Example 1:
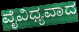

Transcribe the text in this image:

ವೈವಿಧ್ಯವಾದ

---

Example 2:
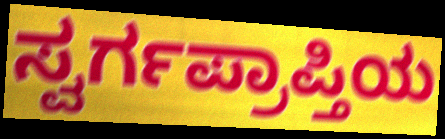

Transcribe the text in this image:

ಸ್ವರ್ಗಪ್ರಾಪ್ತಿಯ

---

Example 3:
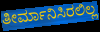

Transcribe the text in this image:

ತೀರ್ಮಾನಿಸಿರಲಿಲ್ಲ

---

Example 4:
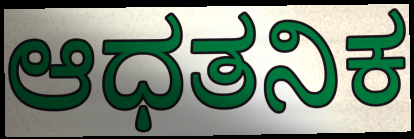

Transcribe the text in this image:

ಆಧತನಿಕ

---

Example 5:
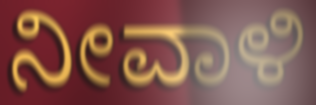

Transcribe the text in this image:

ನೀವಾಳಿ